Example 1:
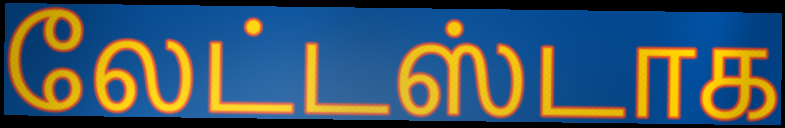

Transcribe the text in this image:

லேட்டஸ்டாக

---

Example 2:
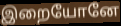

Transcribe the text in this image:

இறையோனே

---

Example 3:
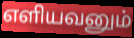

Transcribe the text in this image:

எளியவனும்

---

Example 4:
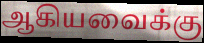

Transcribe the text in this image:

ஆகியவைக்கு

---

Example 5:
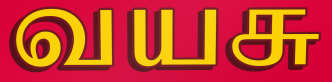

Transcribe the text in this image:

வயசு